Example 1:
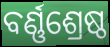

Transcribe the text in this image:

ବର୍ଣ୍ଣଶ୍ରେଷ୍ଠ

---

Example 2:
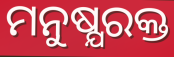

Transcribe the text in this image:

ମନୁଷ୍ଯରକ୍ତ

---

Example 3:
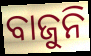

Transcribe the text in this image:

ବାଜୁନି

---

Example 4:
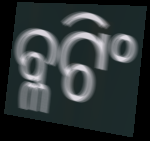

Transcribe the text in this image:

ବ୍ଳଟିଂ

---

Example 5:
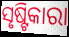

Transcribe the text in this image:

ସୃଷ୍ଟିକାରା